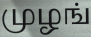
முழங்